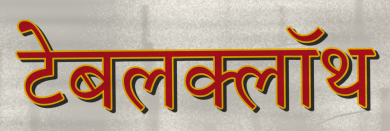
टेबलक्लॉथ